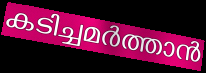
കടിച്ചമർത്താൻ